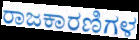
ರಾಜಕಾರಣಿಗಳ